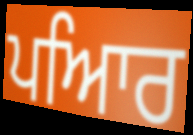
ਪਆਿਰ